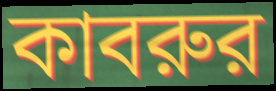
কাবরুর